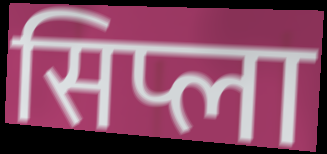
सिप्ला